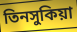
তিনসুকিয়া